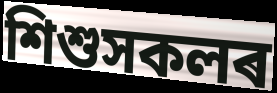
শিশুসকলৰ